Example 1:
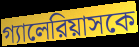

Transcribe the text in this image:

গ্যালেরিয়াসকে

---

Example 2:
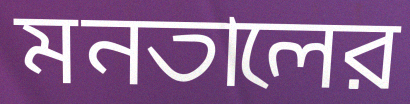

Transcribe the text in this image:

মনতালের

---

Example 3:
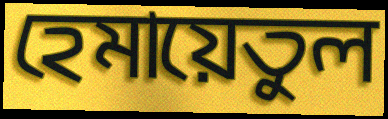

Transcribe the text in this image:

হেমায়েতুল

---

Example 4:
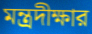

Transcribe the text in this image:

মন্ত্রদীক্ষার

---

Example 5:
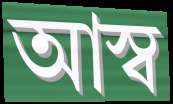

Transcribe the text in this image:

আস্ব